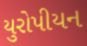
યુરોપીયન